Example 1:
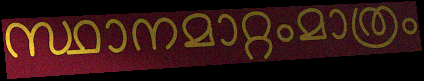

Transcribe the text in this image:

സ്ഥാനമാറ്റംമാത്രം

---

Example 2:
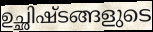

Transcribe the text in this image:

ഉച്ഛിഷ്ടങ്ങളുടെ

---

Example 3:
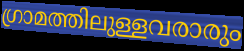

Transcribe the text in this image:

ഗ്രാമത്തിലുള്ളവരാരും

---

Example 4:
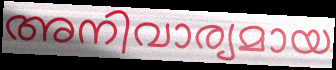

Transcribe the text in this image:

അനിവാര്യമായ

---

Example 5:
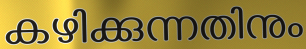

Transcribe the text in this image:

കഴിക്കുന്നതിനും